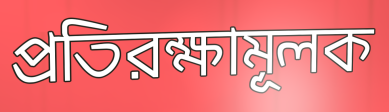
প্রতিরক্ষামূলক